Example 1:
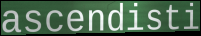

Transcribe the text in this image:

ascendisti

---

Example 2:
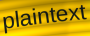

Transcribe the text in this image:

plaintext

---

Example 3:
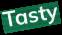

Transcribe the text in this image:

Tasty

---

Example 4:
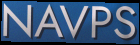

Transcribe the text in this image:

NAVPS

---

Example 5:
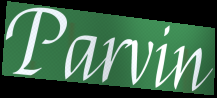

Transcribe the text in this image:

Parvin